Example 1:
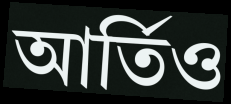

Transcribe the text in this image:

আর্তিও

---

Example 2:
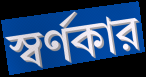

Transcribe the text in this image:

স্বর্ণকার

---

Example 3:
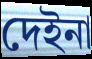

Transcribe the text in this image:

দেইনা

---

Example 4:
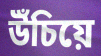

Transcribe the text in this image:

উঁচিয়ে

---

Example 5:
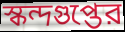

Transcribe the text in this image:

স্কন্দগুপ্তের